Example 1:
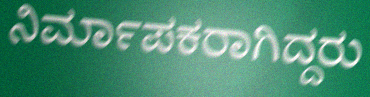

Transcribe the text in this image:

ನಿರ್ಮಾಪಕರಾಗಿದ್ದರು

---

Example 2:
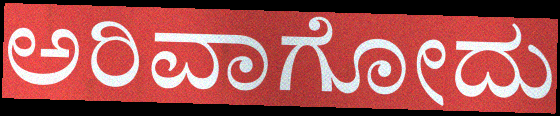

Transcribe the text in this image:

ಅರಿವಾಗೋದು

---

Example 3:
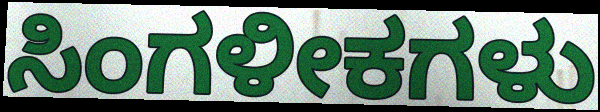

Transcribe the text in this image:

ಸಿಂಗಳೀಕಗಳು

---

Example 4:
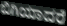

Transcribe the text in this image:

ಬಿಗಿಯಾದರೆ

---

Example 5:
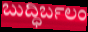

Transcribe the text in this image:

ಬುದ್ಧಿರ್ಬಲಂ